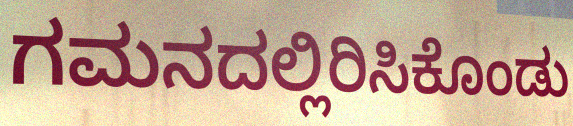
ಗಮನದಲ್ಲಿರಿಸಿಕೊಂಡು